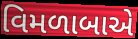
વિમળાબાએ